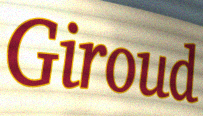
Giroud